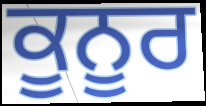
ਕੂਨੂਰ